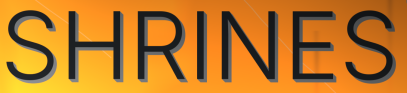
SHRINES